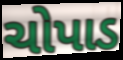
ચોપાડ